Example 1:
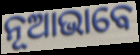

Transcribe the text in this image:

ନୂଆଭାବେ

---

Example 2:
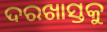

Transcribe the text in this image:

ଦରଖାସ୍ତକୁ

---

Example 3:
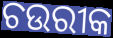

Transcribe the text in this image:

ଚଉରୀକ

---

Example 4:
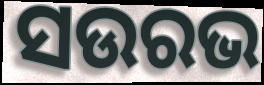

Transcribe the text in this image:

ସଉରଭ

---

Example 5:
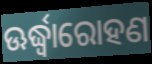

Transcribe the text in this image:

ଊର୍ଦ୍ଧ୍ୱାରୋହଣ